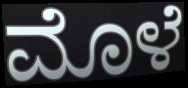
ಮೊಳೆ